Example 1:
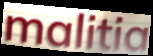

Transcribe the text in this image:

malitia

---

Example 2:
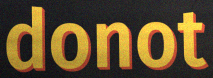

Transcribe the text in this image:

donot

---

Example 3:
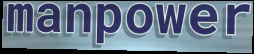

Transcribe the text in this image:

manpower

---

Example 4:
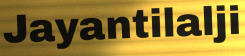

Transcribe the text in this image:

Jayantilalji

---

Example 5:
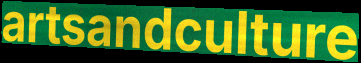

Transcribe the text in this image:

artsandculture